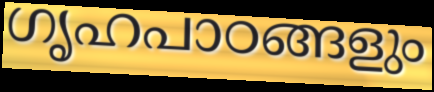
ഗൃഹപാഠങ്ങളും